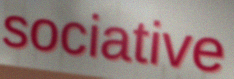
sociative